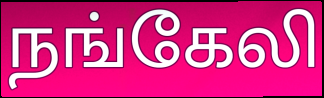
நங்கேலி